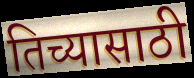
तिच्यासाठी